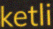
ketli